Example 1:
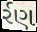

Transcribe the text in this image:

ર્રણ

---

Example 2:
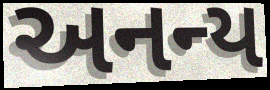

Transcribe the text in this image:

અનન્ય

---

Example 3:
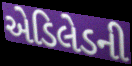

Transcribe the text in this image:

એડિલેડની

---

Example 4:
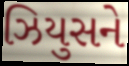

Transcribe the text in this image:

ઝિયુસને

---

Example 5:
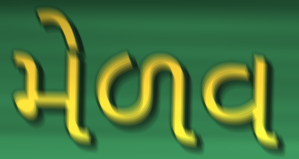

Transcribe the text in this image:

મેળવ